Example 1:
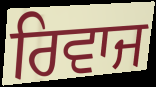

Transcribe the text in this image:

ਰਿਵਾਜ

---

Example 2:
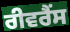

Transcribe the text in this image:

ਰੀਵਰੈਂਸ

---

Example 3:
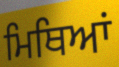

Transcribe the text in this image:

ਮਿਥਿਆਂ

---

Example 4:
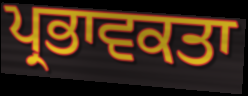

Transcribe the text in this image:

ਪ੍ਰਭਾਵਕਤਾ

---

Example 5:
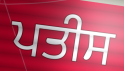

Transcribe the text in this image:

ਪਤੀਸ